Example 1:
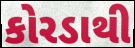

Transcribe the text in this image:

કોરડાથી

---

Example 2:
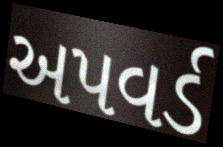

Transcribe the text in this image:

અપવર્ડ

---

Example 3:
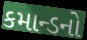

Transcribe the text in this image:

કમાન્ડનો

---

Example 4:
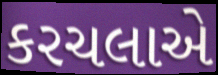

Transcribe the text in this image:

કરચલાએ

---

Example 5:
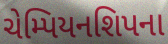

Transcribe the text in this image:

ચેમ્પિયનશિપના